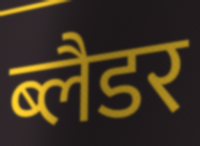
ब्लैडर